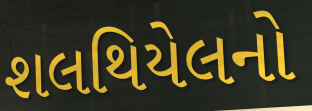
શલથિયેલનો